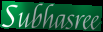
Subhasree